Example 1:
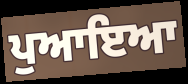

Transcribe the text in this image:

ਪੁਆਇਆ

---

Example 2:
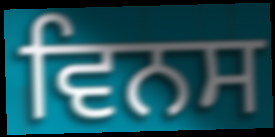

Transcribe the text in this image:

ਵਿਨਸ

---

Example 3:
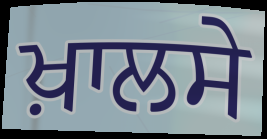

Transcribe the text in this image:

ਖ਼ਾਲਸੇ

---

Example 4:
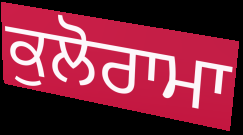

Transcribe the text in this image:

ਕੁਲੋਰਾਮਾ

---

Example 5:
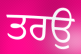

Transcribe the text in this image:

ਤਰਉ